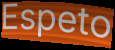
Espeto